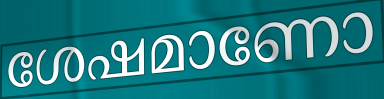
ശേഷമാണോ